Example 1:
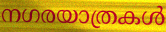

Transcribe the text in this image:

നഗരയാത്രകൾ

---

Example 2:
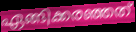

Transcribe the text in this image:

ഏങ്ങിക്കരഞ്ഞത്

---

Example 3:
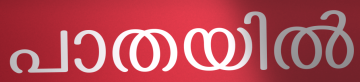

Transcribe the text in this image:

പാതയിൽ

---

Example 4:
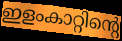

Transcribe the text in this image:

ഇളംകാറ്റിന്റെ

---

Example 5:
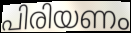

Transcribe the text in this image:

പിരിയണം